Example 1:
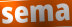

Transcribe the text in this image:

sema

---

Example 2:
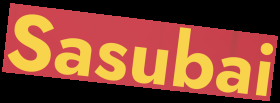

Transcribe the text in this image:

Sasubai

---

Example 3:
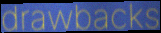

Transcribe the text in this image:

drawbacks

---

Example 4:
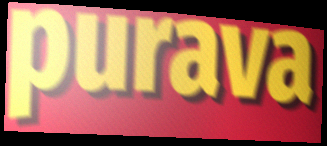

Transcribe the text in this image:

purava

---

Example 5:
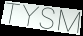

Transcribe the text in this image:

TYSM